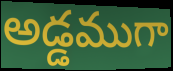
అడ్డముగా